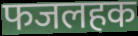
फजलहक